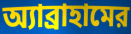
অ্যাব্রাহামের